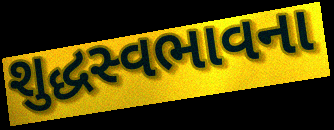
શુદ્ધસ્વભાવના